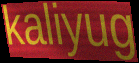
kaliyug